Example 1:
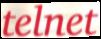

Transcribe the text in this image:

telnet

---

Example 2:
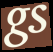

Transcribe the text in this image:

gs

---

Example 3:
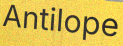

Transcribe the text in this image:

Antilope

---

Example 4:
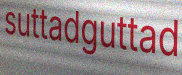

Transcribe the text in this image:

suttadguttad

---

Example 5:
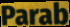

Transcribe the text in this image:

Parab